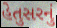
હેતુસરનું